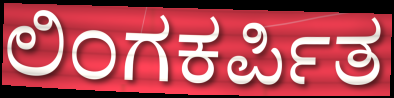
ಲಿಂಗಕರ್ಪಿತ